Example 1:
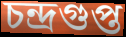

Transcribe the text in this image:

চন্দ্রগুপ্ত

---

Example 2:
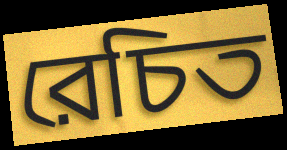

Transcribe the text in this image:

রেচিত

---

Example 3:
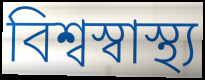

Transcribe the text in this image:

বিশ্বস্বাস্থ্য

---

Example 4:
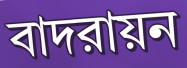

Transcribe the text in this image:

বাদরায়ন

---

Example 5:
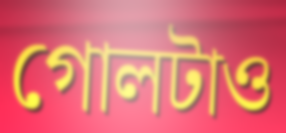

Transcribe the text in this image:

গোলটাও